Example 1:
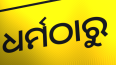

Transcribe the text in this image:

ଧର୍ମଠାରୁ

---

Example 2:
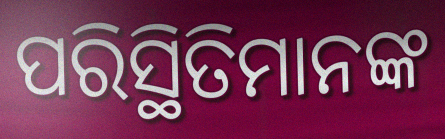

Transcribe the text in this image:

ପରିସ୍ଥିତିମାନଙ୍କ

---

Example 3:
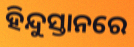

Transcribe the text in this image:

ହିନ୍ଦୁସ୍ତାନରେ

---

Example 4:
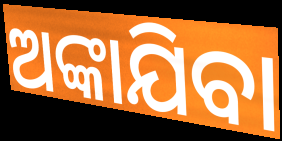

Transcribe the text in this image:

ଅଙ୍କାଯିବା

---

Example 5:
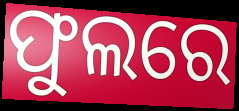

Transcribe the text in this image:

ଫୁଲରେ